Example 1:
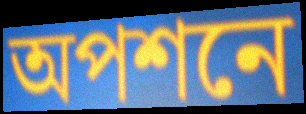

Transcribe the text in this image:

অপশনে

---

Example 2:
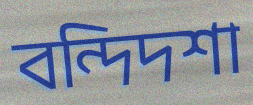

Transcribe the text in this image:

বন্দিদশা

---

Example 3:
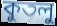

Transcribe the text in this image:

কুতলু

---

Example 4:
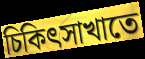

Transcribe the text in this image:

চিকিৎসাখাতে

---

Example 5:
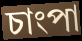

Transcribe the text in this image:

চাংপা